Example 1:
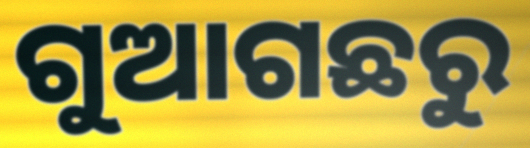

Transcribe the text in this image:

ଗୁଆଗଛରୁ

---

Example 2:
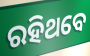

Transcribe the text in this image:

ରହିଥବେ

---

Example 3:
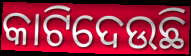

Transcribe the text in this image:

କାଟିଦେଉଛି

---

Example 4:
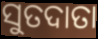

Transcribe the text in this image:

ସୁତଦାତା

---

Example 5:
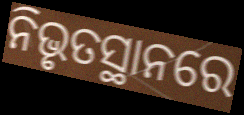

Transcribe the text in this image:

ନିଭୃତସ୍ଥାନରେ